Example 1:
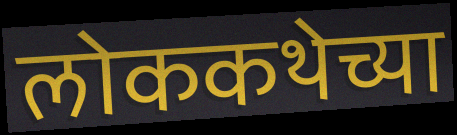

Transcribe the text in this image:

लोककथेच्या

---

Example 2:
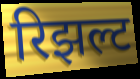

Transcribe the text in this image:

रिझल्ट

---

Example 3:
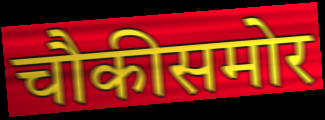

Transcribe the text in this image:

चौकीसमोर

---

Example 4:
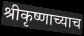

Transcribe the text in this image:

श्रीकृष्णाच्याच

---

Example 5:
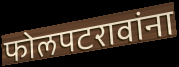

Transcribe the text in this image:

फोलपटरावांना